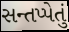
સન્તપ્પેતું